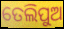
ତେଲିପୁଅ